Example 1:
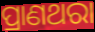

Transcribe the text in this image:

ପ୍ରାଣଥରା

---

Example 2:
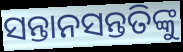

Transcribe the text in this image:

ସନ୍ତାନସନ୍ତତିଙ୍କୁ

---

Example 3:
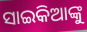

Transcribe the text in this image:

ସାଇକିଆଙ୍କୁ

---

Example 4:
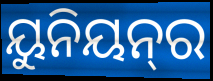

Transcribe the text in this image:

ୟୁନିୟନ୍‌ର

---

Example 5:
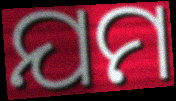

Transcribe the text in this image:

ଯମ